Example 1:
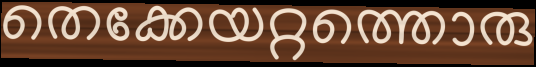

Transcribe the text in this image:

തെക്കേയറ്റത്തൊരു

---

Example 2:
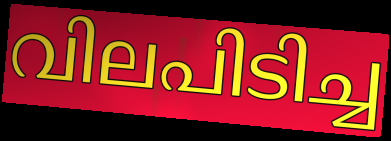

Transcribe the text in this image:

വിലപിടിച്ച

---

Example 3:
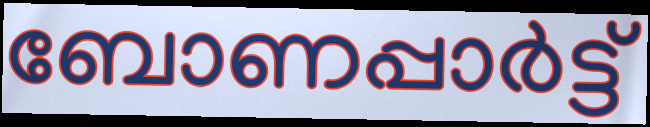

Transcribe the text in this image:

ബോണപ്പാർട്ട്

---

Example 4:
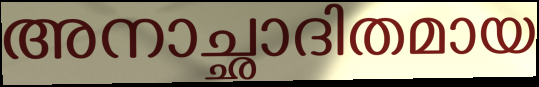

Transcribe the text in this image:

അനാച്ഛാദിതമായ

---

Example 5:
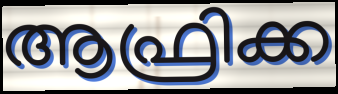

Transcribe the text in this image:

ആഫ്രിക്ക